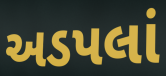
અડપલાં